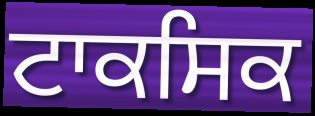
ਟਾਕਸਿਕ